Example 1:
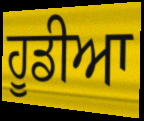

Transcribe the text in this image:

ਹੂਡੀਆ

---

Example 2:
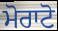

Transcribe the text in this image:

ਮੋਰਾਟੋ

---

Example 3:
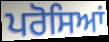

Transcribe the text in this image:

ਪਰੋਸਿਆਂ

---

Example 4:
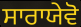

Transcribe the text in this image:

ਸਾਰਾਯੇਵੋ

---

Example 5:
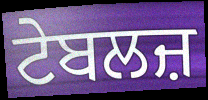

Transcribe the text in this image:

ਟੇਬਲਜ਼